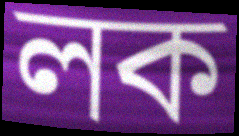
লক